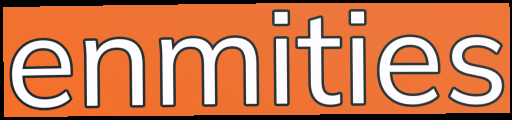
enmities